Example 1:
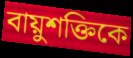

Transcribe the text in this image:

বায়ুশক্তিকে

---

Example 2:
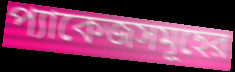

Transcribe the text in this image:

প্যাকেজসমূহের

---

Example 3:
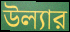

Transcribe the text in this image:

উল্যার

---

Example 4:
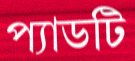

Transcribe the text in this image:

প্যাডটি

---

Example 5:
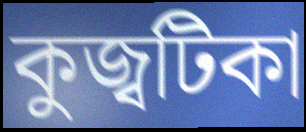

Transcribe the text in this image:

কুজ্বটিকা